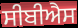
ਸੀਬੀਐਸ